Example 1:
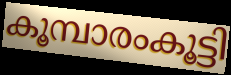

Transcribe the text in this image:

കൂമ്പാരംകൂട്ടി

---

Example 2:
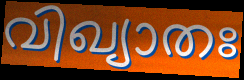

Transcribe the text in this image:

വിഖ്യാതഃ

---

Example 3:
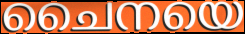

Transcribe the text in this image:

ചൈനയെ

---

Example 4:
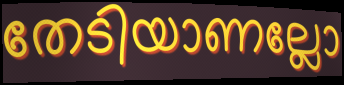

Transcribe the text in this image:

തേടിയാണല്ലോ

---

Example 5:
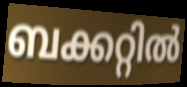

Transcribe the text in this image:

ബക്കറ്റിൽ